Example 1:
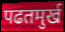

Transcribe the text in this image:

पढतमुर्ख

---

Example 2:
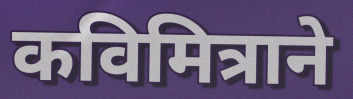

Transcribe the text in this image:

कविमित्राने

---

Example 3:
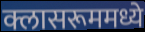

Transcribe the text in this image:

क्लासरूममध्ये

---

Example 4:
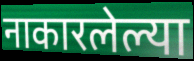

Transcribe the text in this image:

नाकारलेल्या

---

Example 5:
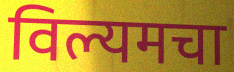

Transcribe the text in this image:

विल्यमचा